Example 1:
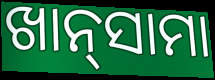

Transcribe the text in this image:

ଖାନ୍‍ସାମା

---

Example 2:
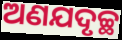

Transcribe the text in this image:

ଅଣଯଦୃଚ୍ଛ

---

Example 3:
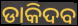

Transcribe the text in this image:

ଡାକିଦବ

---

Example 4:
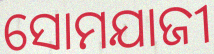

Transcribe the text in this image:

ସୋମଯାଜୀ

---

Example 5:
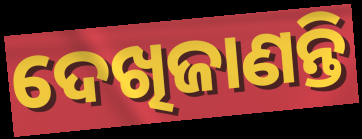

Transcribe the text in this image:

ଦେଖିଜାଣନ୍ତି